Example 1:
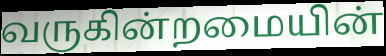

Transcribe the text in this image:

வருகின்றமையின்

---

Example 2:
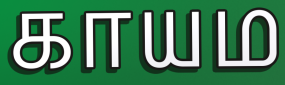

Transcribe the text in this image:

காயம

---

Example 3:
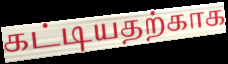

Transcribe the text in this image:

கட்டியதற்காக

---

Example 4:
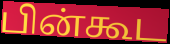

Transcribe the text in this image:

பின்கூட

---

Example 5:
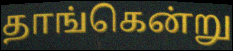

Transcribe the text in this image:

தாங்கென்று